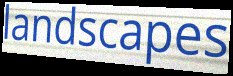
landscapes